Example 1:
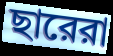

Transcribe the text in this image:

ছারেরা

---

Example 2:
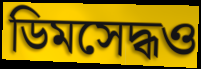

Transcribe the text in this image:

ডিমসেদ্ধও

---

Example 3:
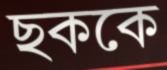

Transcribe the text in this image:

ছককে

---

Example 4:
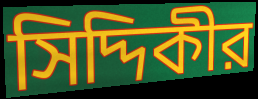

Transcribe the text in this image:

সিদ্দিকীর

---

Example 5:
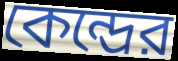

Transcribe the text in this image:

কেন্দ্রের